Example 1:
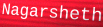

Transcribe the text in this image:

Nagarsheth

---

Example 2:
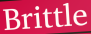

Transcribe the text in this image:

Brittle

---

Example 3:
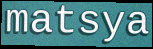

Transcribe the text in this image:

matsya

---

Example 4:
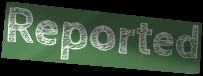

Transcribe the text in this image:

Reported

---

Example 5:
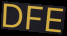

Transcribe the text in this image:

DFE